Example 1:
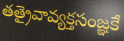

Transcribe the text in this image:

తత్రైవావ్యక్తసంజ్ఞకే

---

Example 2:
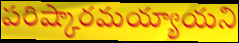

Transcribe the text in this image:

పరిష్కారమయ్యాయని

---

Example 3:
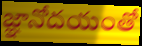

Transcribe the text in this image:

జ్ఞానోదయంతో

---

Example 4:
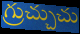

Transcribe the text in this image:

గ్రుచ్చుచు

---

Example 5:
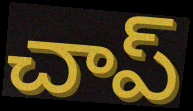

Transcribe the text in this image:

చాప్